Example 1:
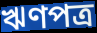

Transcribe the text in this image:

ঋণপত্র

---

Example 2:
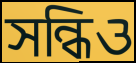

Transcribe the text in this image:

সন্ধিও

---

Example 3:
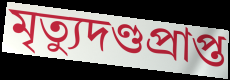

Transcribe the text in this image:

মৃত্যুদণ্ডপ্রাপ্ত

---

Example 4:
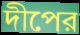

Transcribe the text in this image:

দীপের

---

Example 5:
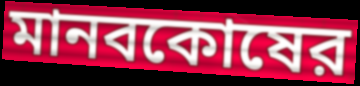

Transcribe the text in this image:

মানবকোষের